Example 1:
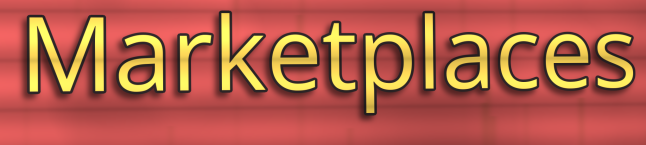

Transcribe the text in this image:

Marketplaces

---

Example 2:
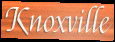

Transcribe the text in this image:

Knoxville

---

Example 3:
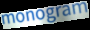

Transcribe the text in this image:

monogram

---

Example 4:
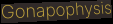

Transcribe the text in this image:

Gonapophysis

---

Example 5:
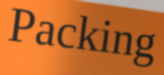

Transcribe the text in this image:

Packing